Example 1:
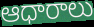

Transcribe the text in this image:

ఆధారాలు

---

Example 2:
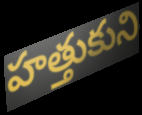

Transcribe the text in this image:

హత్తుకుని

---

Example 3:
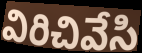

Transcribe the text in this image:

విరిచివేసి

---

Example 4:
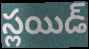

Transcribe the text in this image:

స్లయిడ్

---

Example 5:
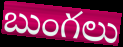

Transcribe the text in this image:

బుంగలు